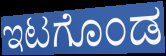
ಇಟಗೊಂಡ